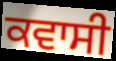
ਕਵਾਸੀ